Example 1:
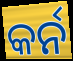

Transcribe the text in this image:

କର୍ନ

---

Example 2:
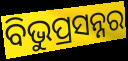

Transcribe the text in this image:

ବିଭୁପ୍ରସନ୍ନର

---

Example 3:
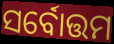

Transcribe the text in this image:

ସର୍ବୋତ୍ତମ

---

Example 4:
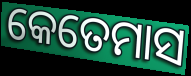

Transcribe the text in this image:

କେତେମାସ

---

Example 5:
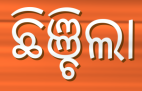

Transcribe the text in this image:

ଛିଞ୍ଚିଲା